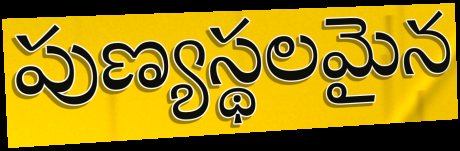
పుణ్యస్థలమైన